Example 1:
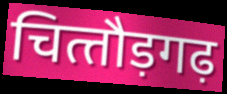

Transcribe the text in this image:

चित्‍तौड़गढ़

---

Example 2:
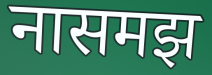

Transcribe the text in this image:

नासमझ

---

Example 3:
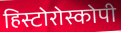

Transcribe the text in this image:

हिस्टोरोस्कोपी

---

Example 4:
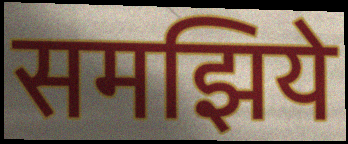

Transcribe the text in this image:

समझिये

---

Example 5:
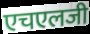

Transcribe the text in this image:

एचएलजी